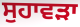
ਸੁਹਾਵੜਾ